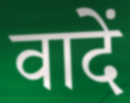
वादें